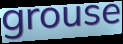
grouse